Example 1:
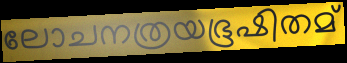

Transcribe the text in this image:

ലോചനത്രയഭൂഷിതമ്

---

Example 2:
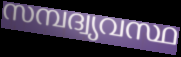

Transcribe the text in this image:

സമ്പദ്വ്യവസ്ഥ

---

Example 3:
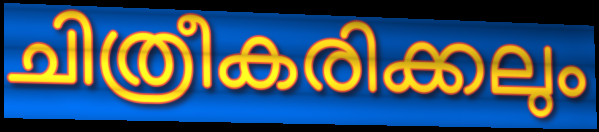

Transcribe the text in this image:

ചിത്രീകരിക്കലും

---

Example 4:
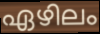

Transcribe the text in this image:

ഏഴിലം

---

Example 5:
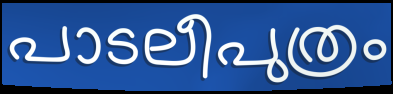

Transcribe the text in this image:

പാടലീപുത്രം